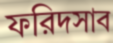
ফরিদসাব